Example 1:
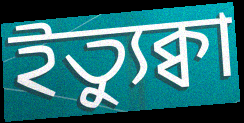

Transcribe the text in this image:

ইত্যুক্বা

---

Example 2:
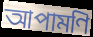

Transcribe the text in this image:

আপামণি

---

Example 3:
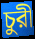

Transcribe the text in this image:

চুরী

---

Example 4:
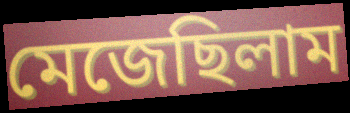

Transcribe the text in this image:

মেজেছিলাম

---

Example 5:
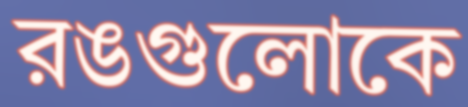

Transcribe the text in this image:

রঙগুলোকে